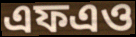
এফএও